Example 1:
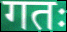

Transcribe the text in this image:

गतः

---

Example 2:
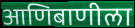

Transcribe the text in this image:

आणिबाणीला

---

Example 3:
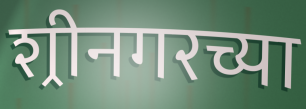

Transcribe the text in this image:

श्रीनगरच्या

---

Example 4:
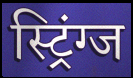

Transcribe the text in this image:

स्ट्रिंग्ज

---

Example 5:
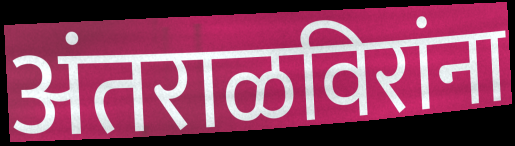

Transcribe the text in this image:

अंतराळविरांना